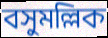
বসুমল্লিক